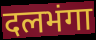
दलभंगा